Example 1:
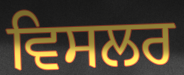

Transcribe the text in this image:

ਵਿਸਲਰ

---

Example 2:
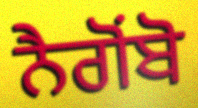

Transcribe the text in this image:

ਨੈਗੋਂਬੋ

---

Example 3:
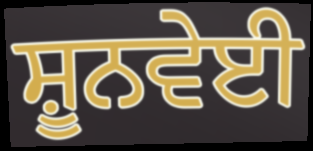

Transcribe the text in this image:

ਸ਼ੂਨਵੇਈ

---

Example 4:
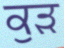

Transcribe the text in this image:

ਕੁੜ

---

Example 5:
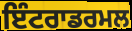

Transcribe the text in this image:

ਇੰਟਰਾਡਰਮਲ